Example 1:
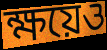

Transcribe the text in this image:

ক্ষয়েও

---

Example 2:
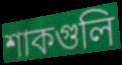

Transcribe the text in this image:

শাকগুলি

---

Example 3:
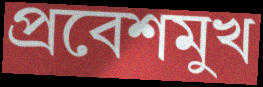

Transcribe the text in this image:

প্রবেশমুখ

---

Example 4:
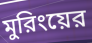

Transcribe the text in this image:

মুরিংয়ের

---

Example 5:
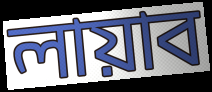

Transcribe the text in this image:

লায়াব